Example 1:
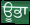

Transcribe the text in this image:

ਊਭਾ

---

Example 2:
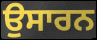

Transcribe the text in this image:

ਉਸਾਰਨ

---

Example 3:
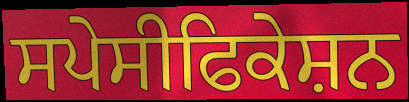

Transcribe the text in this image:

ਸਪੇਸੀਫਿਕੇਸ਼ਨ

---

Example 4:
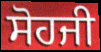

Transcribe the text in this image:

ਸੋਹਜੀ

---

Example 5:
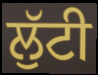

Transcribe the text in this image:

ਲੁੱਟੀ